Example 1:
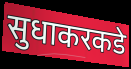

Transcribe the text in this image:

सुधाकरकडे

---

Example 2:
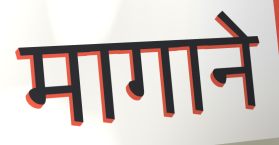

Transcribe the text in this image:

मागाने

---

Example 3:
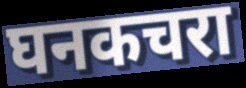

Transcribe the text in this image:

घनकचरा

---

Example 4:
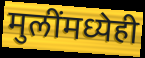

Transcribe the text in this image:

मुलींमध्येही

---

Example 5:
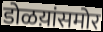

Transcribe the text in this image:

डोळय़ांसमोर